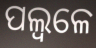
ପଲ୍ୱଳେ